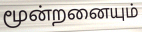
மூன்றனையும்